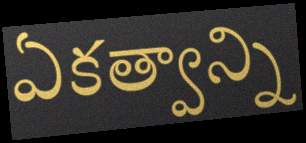
ఏకత్వాన్ని